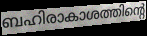
ബഹിരാകാശത്തിന്റെ